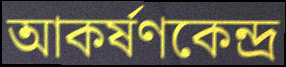
আকর্ষণকেন্দ্র